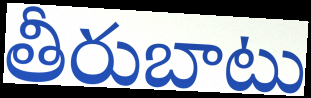
తీరుబాటు